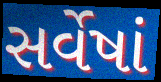
સર્વેષાં